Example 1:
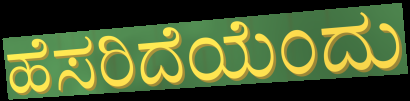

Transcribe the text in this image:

ಹೆಸರಿದೆಯೆಂದು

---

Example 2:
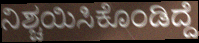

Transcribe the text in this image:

ನಿಶ್ಚಯಿಸಿಕೊಂಡಿದ್ದೆ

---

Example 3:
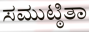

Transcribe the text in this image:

ಸಮುಟ್ಠಿತಾ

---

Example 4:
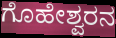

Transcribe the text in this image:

ಗೊಹೇಶ್ವರನ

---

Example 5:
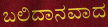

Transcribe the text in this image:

ಬಲಿದಾನವಾದ